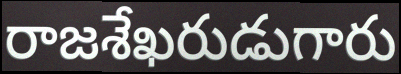
రాజశేఖరుడుగారు